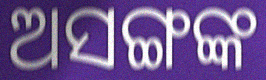
ଅସଙ୍ଗଙ୍କ